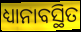
ଧ୍ୟାନାବସ୍ଥିତ